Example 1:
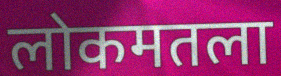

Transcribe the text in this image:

लोकमतला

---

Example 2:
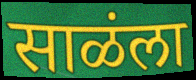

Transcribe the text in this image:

साळंला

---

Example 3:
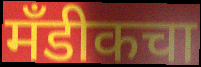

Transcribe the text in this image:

मँडीकचा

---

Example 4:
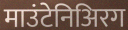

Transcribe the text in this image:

माउंटेनिअिरग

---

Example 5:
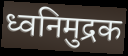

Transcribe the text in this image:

ध्वनिमुद्रक